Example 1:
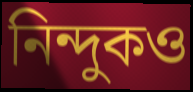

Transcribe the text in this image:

নিন্দুকও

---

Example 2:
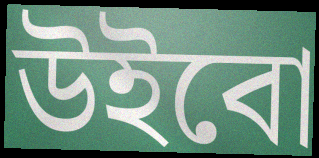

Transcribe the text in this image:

উইবো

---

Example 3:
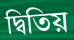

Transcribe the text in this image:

দ্বিতিয়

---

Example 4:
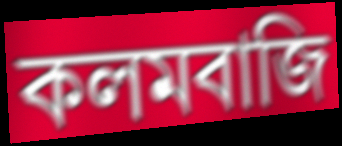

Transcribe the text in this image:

কলমবাজি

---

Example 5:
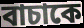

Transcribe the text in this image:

বাচাকে